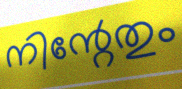
നിന്റേതും